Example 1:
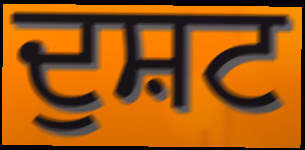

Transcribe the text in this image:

ਦੁਸ਼ਟ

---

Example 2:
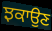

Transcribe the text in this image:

ਝਕਾਉਣ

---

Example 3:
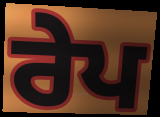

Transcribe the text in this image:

ਰੇਪ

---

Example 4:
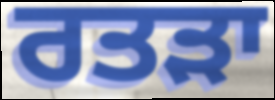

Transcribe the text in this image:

ਰਤੜਾ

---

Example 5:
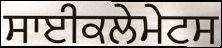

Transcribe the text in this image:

ਸਾਈਕਲੇਮੇਟਸ